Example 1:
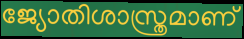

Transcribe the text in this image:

ജ്യോതിശാസ്ത്രമാണ്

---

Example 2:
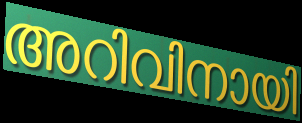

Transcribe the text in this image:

അറിവിനായി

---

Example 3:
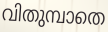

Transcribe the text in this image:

വിതുമ്പാതെ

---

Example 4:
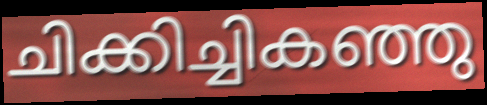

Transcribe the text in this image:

ചിക്കിച്ചികഞ്ഞു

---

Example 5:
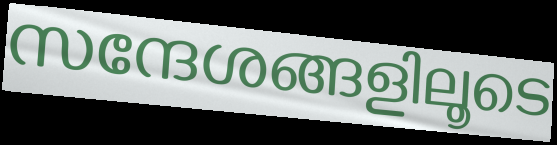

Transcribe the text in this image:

സന്ദേശങ്ങളിലൂടെ